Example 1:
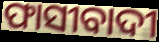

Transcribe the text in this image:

ଫାସୀବାଦୀ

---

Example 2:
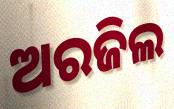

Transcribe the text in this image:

ଅରଜିଲ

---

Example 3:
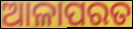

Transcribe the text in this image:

ଆଳାପରତ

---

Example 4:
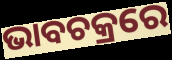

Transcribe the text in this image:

ଭାବଚକ୍ରରେ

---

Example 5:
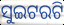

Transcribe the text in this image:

ସୁଇଟରଟି